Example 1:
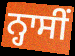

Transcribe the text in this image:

ਨ੍ਹਾਸੀਂ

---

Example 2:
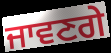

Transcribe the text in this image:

ਜਾਵਣਗੇ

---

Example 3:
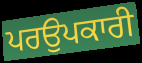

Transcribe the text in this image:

ਪਰਉਪਕਾਰੀ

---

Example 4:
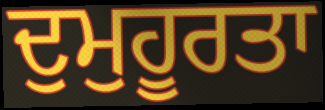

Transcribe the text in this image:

ਦੁਮੁਹੂਰਤਾ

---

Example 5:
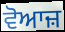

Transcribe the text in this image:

ਵੋਆਜ਼